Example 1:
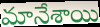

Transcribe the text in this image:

మానేశాయి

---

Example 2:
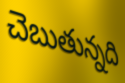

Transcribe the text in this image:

చెబుతున్నది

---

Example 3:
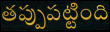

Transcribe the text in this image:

తప్పుపట్టింది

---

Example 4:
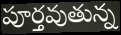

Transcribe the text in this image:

పూర్తవుతున్న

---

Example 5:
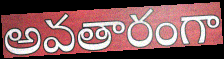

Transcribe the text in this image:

అవతారంగా